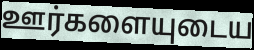
ஊர்களையுடைய